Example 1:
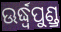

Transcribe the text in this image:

ଊର୍ଦ୍ଧ୍ୱପୁଣ୍ଡ୍ର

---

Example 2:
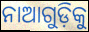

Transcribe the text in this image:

ନାଆଗୁଡ଼ିକୁ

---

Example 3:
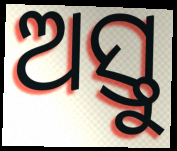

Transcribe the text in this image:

ଅସ୍ତୁ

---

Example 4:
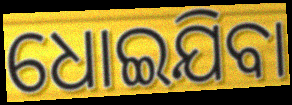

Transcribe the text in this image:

ଧୋଇଯିବା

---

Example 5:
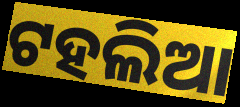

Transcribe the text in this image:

ଟହଲିଆ